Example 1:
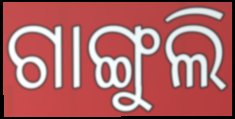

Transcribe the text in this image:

ଗାଙ୍ଗୁଲି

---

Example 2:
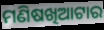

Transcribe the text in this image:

ମଣିଷଖିଆଟାର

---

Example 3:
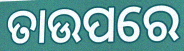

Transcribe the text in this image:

ତାଉପରେ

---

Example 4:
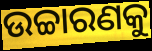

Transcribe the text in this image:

ଉଚ୍ଚାରଣକୁ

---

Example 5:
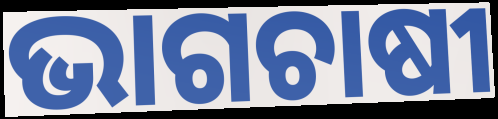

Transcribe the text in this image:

ଭାଗଚାଷୀ